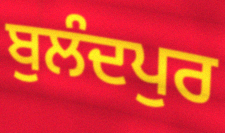
ਬੁਲੰਦਪੁਰ